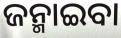
ଜନ୍ମାଇବା